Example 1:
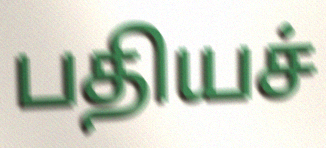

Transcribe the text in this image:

பதியச்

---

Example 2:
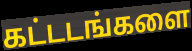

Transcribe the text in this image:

கட்டடங்களை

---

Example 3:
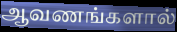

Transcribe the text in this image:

ஆவணங்களால்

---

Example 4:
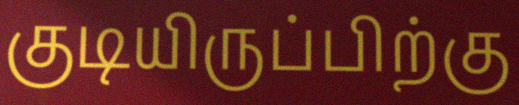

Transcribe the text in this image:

குடியிருப்பிற்கு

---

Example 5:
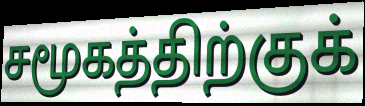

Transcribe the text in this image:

சமூகத்திற்குக்